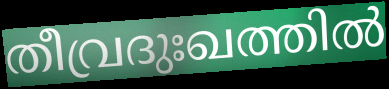
തീവ്രദുഃഖത്തിൽ